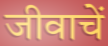
जीवाचें